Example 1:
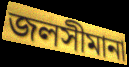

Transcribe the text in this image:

জলসীমানা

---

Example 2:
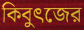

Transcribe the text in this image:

কিবুৎজের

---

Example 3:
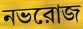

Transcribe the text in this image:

নভরোজ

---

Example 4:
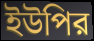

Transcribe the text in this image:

ইউপির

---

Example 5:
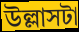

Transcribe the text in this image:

উল্লাসটা